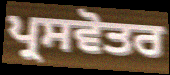
ਪ੍ਰਸਵੋਤਰ